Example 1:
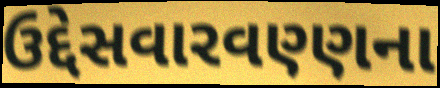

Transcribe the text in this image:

ઉદ્દેસવારવણ્ણના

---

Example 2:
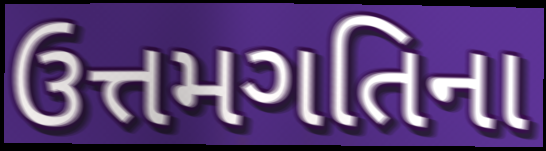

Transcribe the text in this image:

ઉત્તમગતિના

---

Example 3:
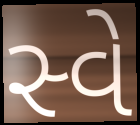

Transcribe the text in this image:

સ્વે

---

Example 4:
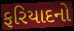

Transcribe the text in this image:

ફરિયાદનો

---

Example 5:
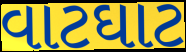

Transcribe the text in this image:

વાટઘાટ